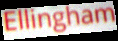
Ellingham